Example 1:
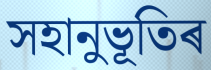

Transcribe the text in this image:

সহানুভূতিৰ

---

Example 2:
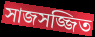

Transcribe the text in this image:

সাজসজ্জিত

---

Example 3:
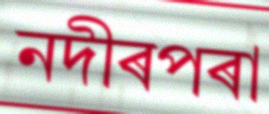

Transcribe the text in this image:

নদীৰপৰা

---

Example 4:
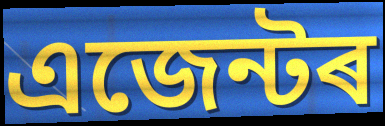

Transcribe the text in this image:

এজেন্টৰ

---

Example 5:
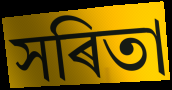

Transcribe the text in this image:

সৰিতা